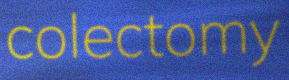
colectomy